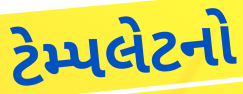
ટેમ્પલેટનો